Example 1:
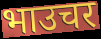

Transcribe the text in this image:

भाउचर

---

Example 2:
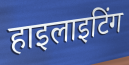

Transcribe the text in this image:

हाइलाइटिंग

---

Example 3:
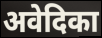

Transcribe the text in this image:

अवेदिका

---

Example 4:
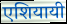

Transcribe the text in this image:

एशियायी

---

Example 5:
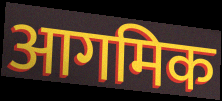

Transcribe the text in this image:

आगमिक